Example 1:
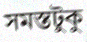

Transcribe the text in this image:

সমস্তটুকু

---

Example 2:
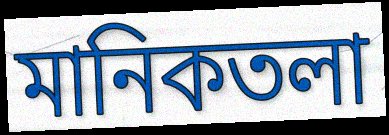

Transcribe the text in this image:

মানিকতলা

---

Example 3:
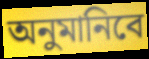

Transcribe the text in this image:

অনুমানিবে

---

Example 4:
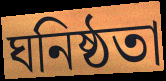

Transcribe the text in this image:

ঘনিষ্ঠতা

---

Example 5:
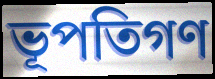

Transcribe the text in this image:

ভূপতিগণ